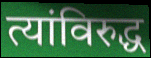
त्यांविरुद्ध